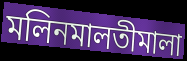
মলিনমালতীমালা